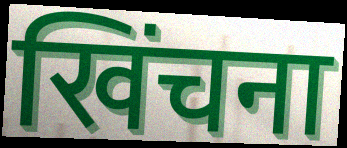
खिंचना